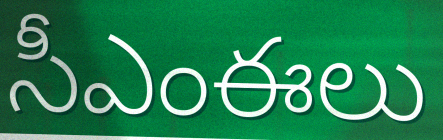
సీఎంఈలు